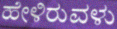
ಹೇಳಿರುವಳು